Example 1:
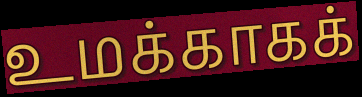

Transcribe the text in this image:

உமக்காகக்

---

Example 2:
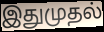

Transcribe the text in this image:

இதுமுதல்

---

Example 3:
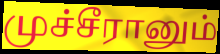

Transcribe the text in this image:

முச்சீரானும்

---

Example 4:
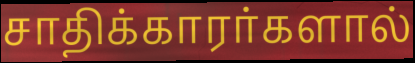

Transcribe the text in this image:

சாதிக்காரர்களால்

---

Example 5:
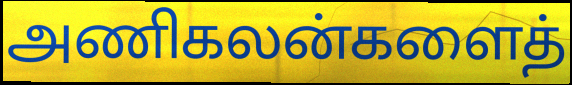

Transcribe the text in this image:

அணிகலன்களைத்